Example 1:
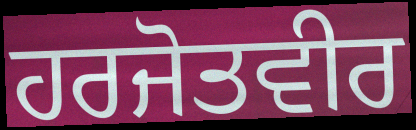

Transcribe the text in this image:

ਹਰਜੋਤਵੀਰ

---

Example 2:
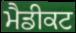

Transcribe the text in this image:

ਮੈਡੀਕਟ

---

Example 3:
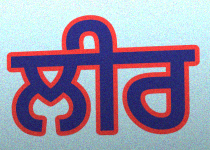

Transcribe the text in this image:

ਲੀਰ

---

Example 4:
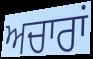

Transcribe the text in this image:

ਅਚਾਰਾਂ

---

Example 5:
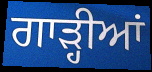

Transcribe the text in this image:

ਗਾੜ੍ਹੀਆਂ